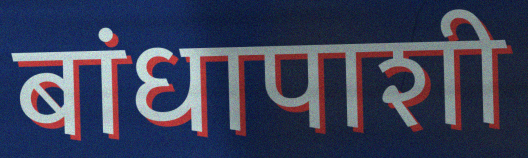
बांधापाशी